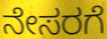
ನೇಸರಗೆ